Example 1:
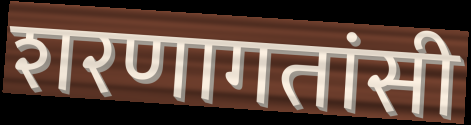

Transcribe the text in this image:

शरणागतांसी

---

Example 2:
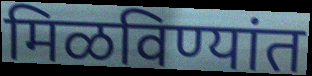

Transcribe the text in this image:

मिळविण्यांत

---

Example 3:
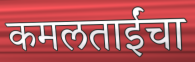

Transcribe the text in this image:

कमलताईंचा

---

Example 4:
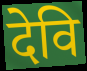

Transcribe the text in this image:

देवि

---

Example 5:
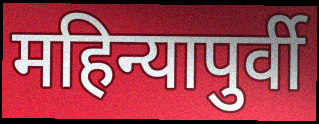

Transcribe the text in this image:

महिन्यापुर्वी